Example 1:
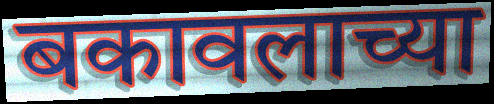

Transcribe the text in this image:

बकावलाच्या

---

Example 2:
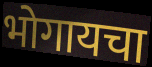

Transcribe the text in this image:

भोगायचा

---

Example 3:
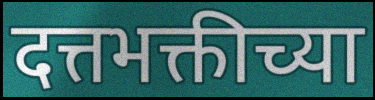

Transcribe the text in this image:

दत्तभक्तीच्या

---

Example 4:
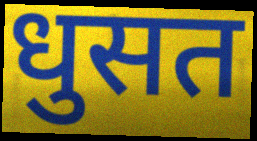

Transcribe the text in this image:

धुसत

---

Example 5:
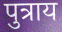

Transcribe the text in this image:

पुत्राय